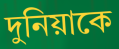
দুনিয়াকে